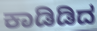
ಕಾಡಿಡಿದ